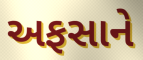
અફસાને